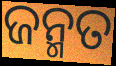
ଜନ୍ମତ